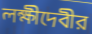
লক্ষীদেবীর